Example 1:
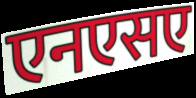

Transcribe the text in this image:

एनएसए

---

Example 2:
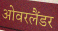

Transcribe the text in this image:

ओवरलैंडर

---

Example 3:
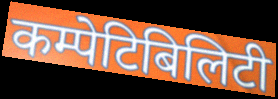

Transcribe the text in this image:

कम्पेटिबिलिटी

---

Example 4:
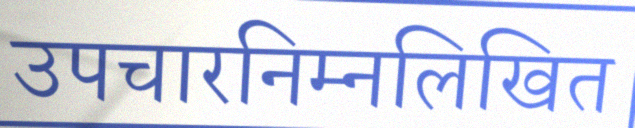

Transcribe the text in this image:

उपचारनिम्नलिखित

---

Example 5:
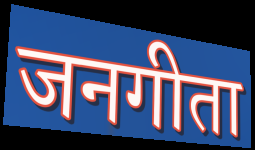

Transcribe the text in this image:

जनगीता